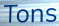
Tons